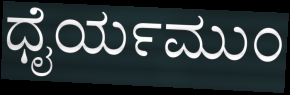
ಧೈರ್ಯಮುಂ